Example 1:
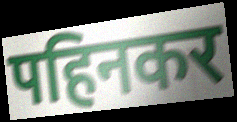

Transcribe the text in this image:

पहिनकर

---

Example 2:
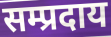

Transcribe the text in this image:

सम्प्रदाय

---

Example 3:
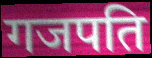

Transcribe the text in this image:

गजपति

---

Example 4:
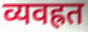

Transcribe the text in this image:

व्यवह्रत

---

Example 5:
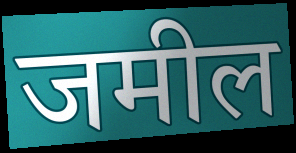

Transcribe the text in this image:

जमील